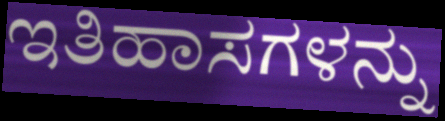
ಇತಿಹಾಸಗಳನ್ನು